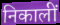
निकालीं